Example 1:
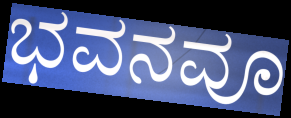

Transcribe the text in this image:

ಭವನವೂ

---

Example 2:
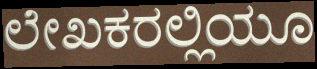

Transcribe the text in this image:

ಲೇಖಕರಲ್ಲಿಯೂ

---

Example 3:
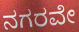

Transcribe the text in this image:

ನಗರವೇ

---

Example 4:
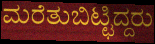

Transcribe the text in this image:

ಮರೆತುಬಿಟ್ಟಿದ್ದರು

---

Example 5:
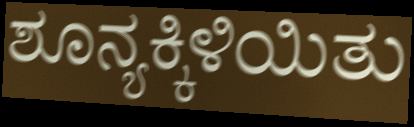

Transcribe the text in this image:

ಶೂನ್ಯಕ್ಕಿಳಿಯಿತು